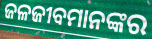
ଜଳଜୀବମାନଙ୍କର